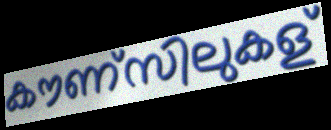
കൗണ്സിലുകള്